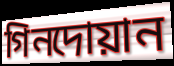
গিনদোয়ান